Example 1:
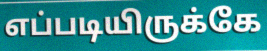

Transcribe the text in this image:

எப்படியிருக்கே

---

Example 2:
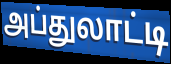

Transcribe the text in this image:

அப்துலாட்டி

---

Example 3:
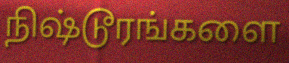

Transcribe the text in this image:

நிஷ்டூரங்களை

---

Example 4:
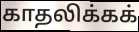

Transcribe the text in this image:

காதலிக்கக்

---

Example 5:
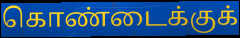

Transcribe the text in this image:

கொண்டைக்குக்